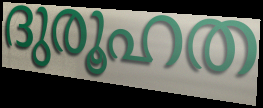
ദുരൂഹത